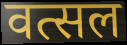
वत्सल